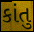
કાંતુ